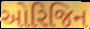
ઓરિજિન